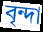
বৃন্দা